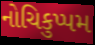
નોચિકુપ્પમ